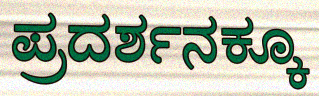
ಪ್ರದರ್ಶನಕ್ಕೂ